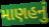
માણહનું